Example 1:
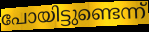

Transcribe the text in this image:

പോയിട്ടുണ്ടെന്ന്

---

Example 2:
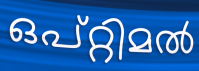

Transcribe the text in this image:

ഒപ്റ്റിമൽ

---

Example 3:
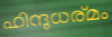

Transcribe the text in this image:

ഹിന്ദുധര്മം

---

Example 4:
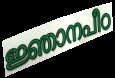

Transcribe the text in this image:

ജ്ഞാനപീഠ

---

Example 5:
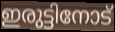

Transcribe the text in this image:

ഇരുട്ടിനോട്